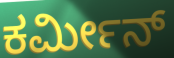
ಕರ್ಮೀನ್